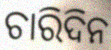
ଚାରିଦିନ